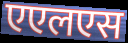
एएलएस